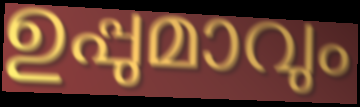
ഉപ്പുമാവും